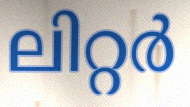
ലിറ്റർ